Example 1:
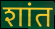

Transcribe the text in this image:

शांत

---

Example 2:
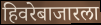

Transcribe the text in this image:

हिवरेबाजारला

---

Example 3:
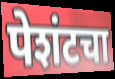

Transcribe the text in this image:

पेशंटचा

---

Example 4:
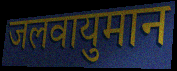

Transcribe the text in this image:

जलवायुमान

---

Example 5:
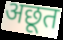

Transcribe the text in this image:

अछूत